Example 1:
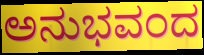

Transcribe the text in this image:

ಅನುಭವಂದ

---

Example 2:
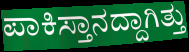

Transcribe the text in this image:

ಪಾಕಿಸ್ತಾನದ್ದಾಗಿತ್ತು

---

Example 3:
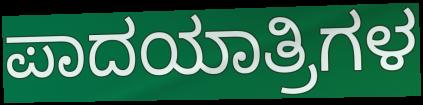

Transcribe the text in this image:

ಪಾದಯಾತ್ರಿಗಳ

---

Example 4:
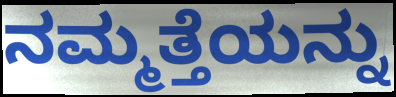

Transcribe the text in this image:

ನಮ್ಮತ್ತೆಯನ್ನು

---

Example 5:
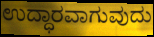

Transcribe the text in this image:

ಉದ್ಧಾರವಾಗುವುದು